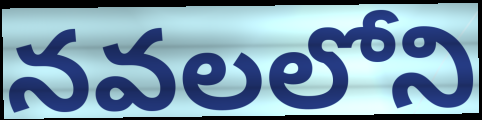
నవలలోని